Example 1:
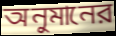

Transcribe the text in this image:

অনুমানের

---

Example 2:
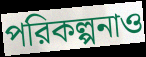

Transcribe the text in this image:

পরিকল্পনাও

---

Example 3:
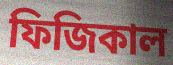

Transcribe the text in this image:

ফিজিকাল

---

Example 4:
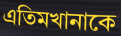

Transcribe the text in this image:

এতিমখানাকে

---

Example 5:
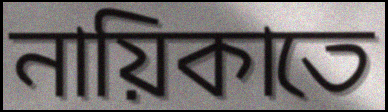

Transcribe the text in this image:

নায়িকাতে